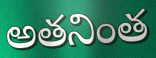
అతనింత